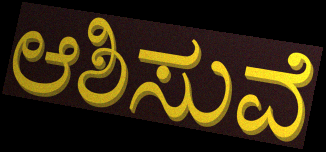
ಆಶಿಸುವೆ